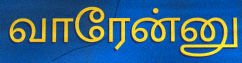
வாரேன்னு